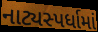
નાટ્યસ્પર્ધામાં